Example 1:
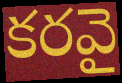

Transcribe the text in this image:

కరవై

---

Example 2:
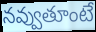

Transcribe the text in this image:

నవ్వుతూంటే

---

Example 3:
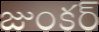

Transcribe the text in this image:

జుంకర్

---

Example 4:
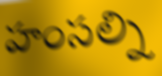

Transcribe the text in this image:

హంసల్ని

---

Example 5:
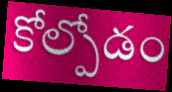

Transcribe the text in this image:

కోల్పోడం